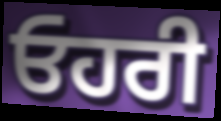
ਓਹਰੀ